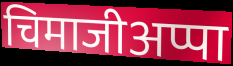
चिमाजीअप्पा